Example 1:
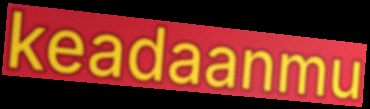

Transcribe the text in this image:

keadaanmu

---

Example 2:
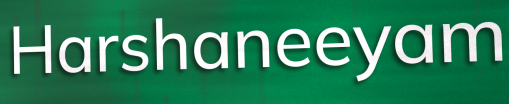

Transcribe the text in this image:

Harshaneeyam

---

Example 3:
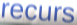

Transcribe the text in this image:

recurs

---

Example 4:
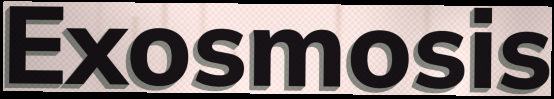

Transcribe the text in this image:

Exosmosis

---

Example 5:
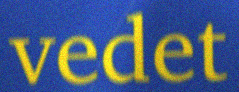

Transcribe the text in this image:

vedet